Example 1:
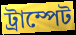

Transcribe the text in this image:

ট্রাম্পেট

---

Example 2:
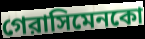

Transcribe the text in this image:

গেরাসিমেনকো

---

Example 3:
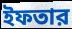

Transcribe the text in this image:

ইফতার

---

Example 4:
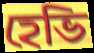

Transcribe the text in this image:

হেভি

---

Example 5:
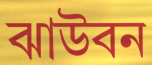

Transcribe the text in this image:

ঝাউবন